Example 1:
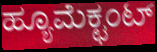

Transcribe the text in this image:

ಹ್ಯೂಮೆಕ್ಟಂಟ್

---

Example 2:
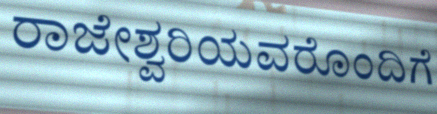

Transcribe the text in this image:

ರಾಜೇಶ್ವರಿಯವರೊಂದಿಗೆ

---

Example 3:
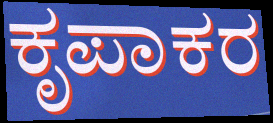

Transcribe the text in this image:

ಕೃಪಾಕರ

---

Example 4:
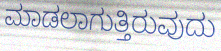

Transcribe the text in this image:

ಮಾಡಲಾಗುತ್ತಿರುವುದು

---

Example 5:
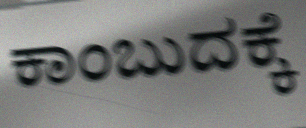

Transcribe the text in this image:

ಕಾಂಬುದಕ್ಕೆ